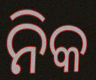
ନିକ